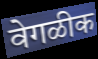
वेगळीक